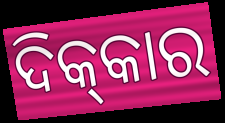
ଦିକ୍‌କାର